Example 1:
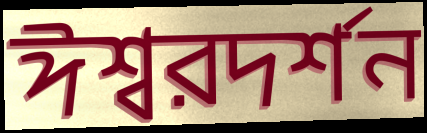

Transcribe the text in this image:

ঈশ্বরদর্শন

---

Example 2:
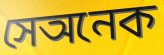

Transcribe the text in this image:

সেঅনেক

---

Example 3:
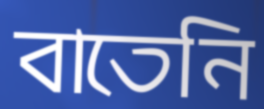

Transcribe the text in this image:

বাতেনি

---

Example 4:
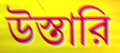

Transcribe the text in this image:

উস্তারি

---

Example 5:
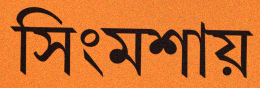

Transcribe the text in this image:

সিংমশায়